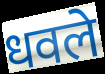
धवले